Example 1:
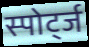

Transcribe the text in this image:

स्पोर्ट्ज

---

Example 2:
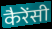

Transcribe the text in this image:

कैरेंसी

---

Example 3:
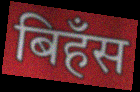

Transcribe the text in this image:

बिहँस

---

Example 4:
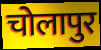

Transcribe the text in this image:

चोलापुर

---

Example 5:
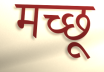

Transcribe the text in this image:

मच्छू